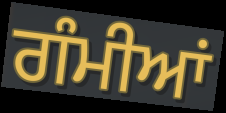
ਗੰਮੀਆਂ